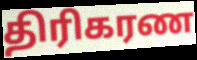
திரிகரண